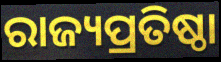
ରାଜ୍ୟପ୍ରତିଷ୍ଠା